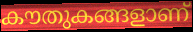
കൗതുകങ്ങളാണ്